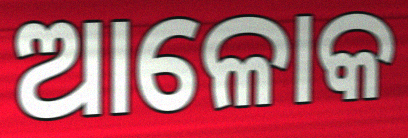
ଆଳୋକ